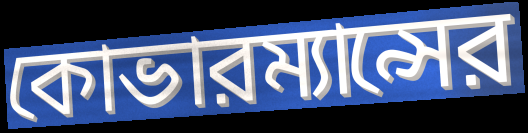
কোভারম্যান্সের